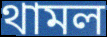
থামল